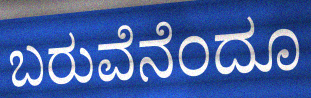
ಬರುವೆನೆಂದೂ